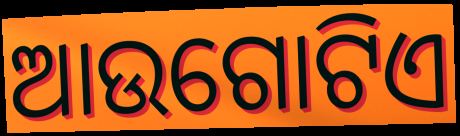
ଆଉଗୋଟିଏ